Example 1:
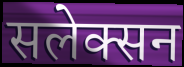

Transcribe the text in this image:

सलेक्सन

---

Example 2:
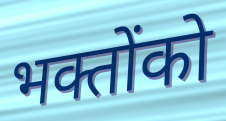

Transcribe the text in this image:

भक्तोंको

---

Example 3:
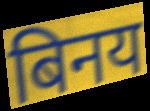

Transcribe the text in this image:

बिनय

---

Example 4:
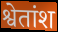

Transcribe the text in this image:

श्वेतांश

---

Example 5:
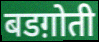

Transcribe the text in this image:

बडग़ोती